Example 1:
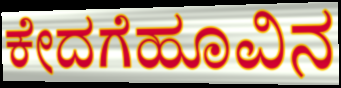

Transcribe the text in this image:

ಕೇದಗೆಹೂವಿನ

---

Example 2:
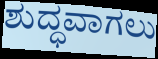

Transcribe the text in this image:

ಶುದ್ಧವಾಗಲು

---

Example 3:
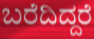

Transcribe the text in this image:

ಬರೆದಿದ್ದರೆ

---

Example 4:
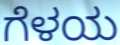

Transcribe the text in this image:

ಗೆಳಯ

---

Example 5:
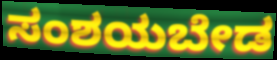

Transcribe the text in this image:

ಸಂಶಯಬೇಡ